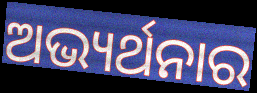
ଅଭ୍ୟର୍ଥନାର